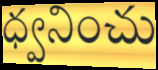
ధ్వనించు